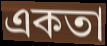
একতা